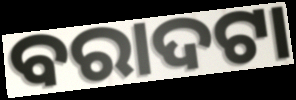
ବରାଦଟା